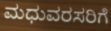
ಮಧುವರಸರಿಗೆ